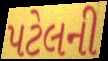
પટેલની